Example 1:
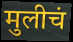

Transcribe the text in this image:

मुलीचं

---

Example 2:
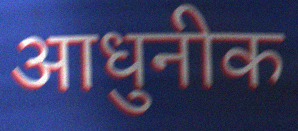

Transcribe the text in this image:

आधुनीक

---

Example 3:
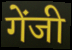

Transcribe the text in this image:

गेंजी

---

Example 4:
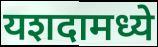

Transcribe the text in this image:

यशदामध्ये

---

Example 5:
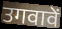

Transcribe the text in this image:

उगवावें